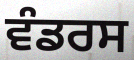
ਵੰਡਰਸ